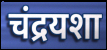
चंद्रयशा